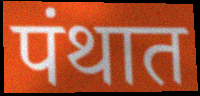
पंथात